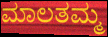
ಮಾಲತಮ್ಮ